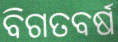
ବିଗତବର୍ଷ